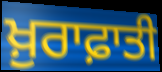
ਖ਼ੁਰਾਫ਼ਾਤੀ